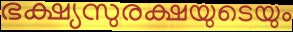
ഭക്ഷ്യസുരക്ഷയുടെയും